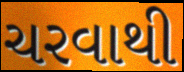
ચરવાથી